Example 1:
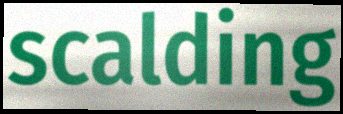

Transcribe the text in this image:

scalding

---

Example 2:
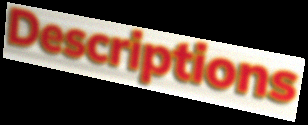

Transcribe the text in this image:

Descriptions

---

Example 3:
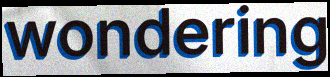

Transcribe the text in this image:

wondering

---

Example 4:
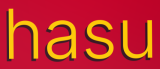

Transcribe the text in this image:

hasu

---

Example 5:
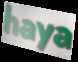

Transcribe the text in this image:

haya